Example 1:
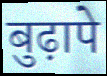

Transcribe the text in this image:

बुढ़ापे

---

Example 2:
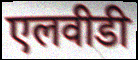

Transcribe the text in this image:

एलवीडी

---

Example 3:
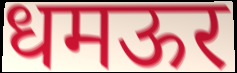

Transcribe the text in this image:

धमऊर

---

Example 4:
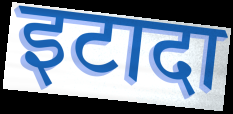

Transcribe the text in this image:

इटादा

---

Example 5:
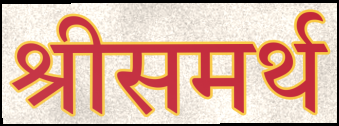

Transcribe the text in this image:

श्रीसमर्थ